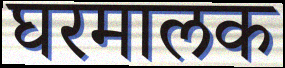
घरमालक